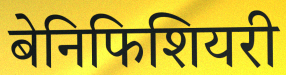
बेनिफिशियरी